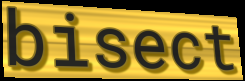
bisect